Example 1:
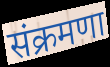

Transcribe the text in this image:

संक्रमणा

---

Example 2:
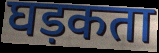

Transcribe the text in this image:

घड़कता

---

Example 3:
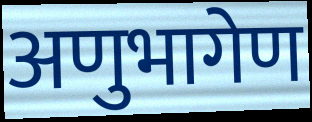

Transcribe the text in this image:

अणुभागेण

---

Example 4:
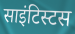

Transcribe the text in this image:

साइंटिस्टस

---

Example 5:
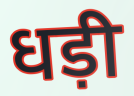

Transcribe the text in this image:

धड़ी